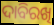
ଦାବିରଖି